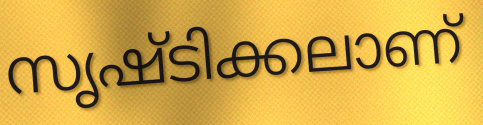
സൃഷ്ടിക്കലാണ്